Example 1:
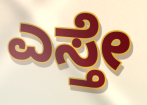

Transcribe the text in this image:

ಎಸ್ತೇ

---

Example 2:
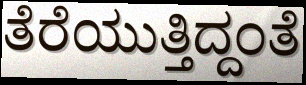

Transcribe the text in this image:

ತೆರೆಯುತ್ತಿದ್ದಂತೆ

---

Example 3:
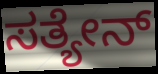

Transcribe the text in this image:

ಸತ್ಯೇನ್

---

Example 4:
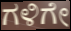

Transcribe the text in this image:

ಗಳಿಗೇ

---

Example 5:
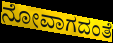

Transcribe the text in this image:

ನೋವಾಗದಂತೆ